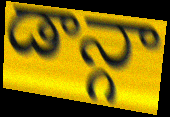
డాన్గా